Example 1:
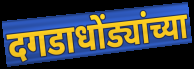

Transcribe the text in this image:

दगडाधोंड्यांच्या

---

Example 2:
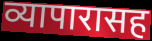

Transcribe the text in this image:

व्यापारासह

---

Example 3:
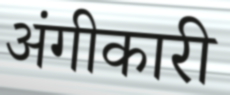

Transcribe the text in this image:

अंगीकारी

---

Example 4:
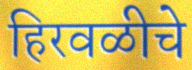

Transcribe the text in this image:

हिरवळीचे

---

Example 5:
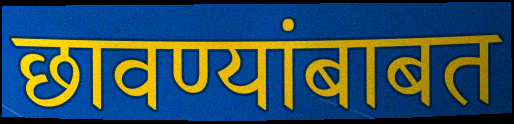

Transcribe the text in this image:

छावण्यांबाबत